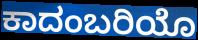
ಕಾದಂಬರಿಯೊ